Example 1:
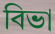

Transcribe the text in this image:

বিভা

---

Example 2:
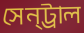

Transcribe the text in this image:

সেন্‌ট্রাল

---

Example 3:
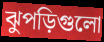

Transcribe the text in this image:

ঝুপড়িগুলো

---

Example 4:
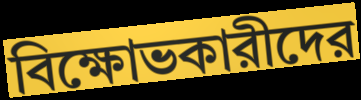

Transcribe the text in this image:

বিক্ষোভকারীদের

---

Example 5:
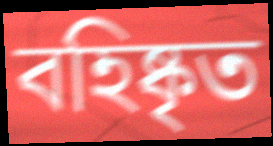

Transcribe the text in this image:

বহিষ্কৃত